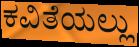
ಕವಿತೆಯಲ್ಲು